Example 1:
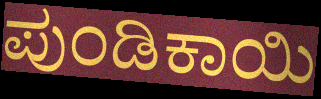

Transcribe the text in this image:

ಪುಂಡಿಕಾಯಿ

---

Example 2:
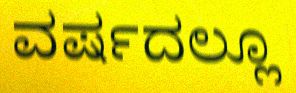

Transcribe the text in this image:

ವರ್ಷದಲ್ಲೂ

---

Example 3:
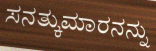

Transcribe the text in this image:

ಸನತ್ಕುಮಾರನನ್ನು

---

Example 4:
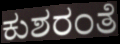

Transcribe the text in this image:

ಕುಶರಂತೆ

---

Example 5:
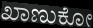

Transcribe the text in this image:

ಖಾಣುಕೋ